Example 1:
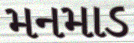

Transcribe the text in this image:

મનમાડ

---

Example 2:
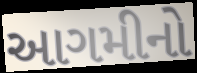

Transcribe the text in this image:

આગમીનો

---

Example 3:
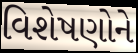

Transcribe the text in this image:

વિશેષણોને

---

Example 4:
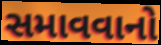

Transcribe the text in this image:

સમાવવાનો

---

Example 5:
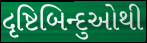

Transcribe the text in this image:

દૃષ્ટિબિન્દુઓથી